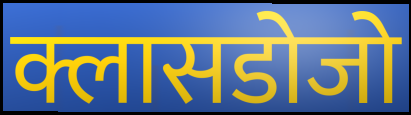
क्लासडोजो